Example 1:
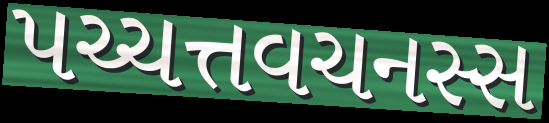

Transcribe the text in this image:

પચ્ચત્તવચનસ્સ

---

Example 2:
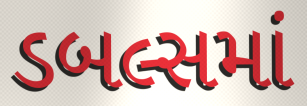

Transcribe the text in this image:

ડબલ્સમાં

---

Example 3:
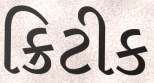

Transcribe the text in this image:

ક્રિટીક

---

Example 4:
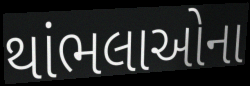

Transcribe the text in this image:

થાંભલાઓના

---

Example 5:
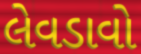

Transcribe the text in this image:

લેવડાવો